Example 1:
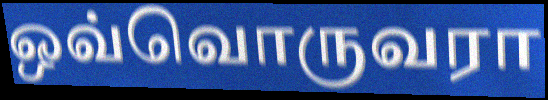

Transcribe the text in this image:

ஒவ்வொருவரா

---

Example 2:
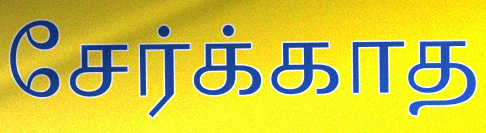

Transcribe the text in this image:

சேர்க்காத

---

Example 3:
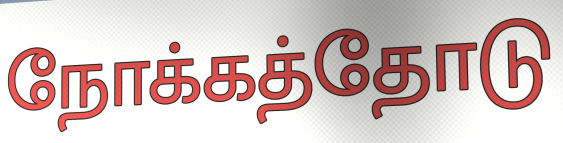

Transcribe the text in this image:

நோக்கத்தோடு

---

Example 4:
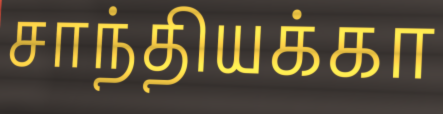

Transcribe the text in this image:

சாந்தியக்கா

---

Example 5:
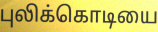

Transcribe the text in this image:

புலிக்கொடியை